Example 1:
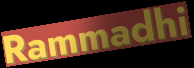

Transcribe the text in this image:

Rammadhi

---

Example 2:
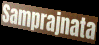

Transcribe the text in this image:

Samprajnata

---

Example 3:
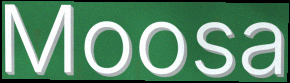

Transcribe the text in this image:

Moosa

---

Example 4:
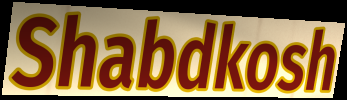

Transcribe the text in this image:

Shabdkosh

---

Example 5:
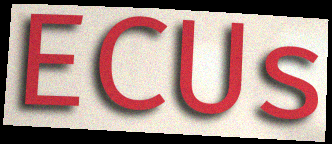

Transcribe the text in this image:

ECUs